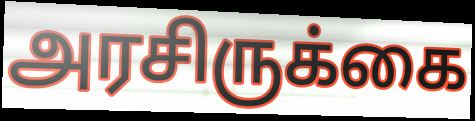
அரசிருக்கை